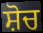
ਸ਼ੋਚ